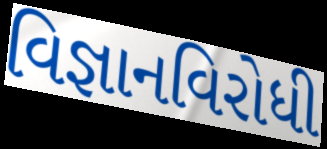
વિજ્ઞાનવિરોધી